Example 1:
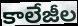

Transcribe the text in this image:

కాలేజీల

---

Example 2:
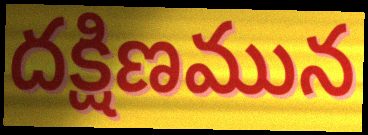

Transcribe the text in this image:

దక్షిణమున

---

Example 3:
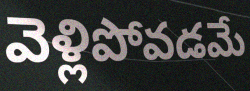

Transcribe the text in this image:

వెళ్లిపోవడమే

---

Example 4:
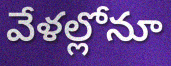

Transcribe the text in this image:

వేళల్లోనూ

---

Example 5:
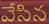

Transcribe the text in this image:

వేసిన